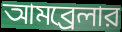
আমব্রেলার